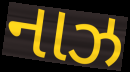
નાઝ